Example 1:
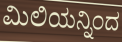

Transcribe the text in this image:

ಮಿಲಿಯನ್ನಿಂದ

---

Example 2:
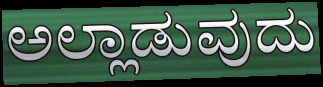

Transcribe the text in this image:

ಅಲ್ಲಾಡುವುದು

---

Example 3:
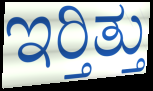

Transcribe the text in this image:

ಇರ್‍ತಿತ್ತು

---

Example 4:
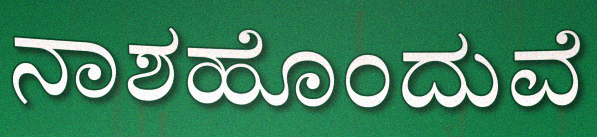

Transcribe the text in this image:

ನಾಶಹೊಂದುವೆ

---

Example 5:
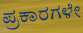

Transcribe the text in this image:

ಪ್ರಕಾರಗಳೇ